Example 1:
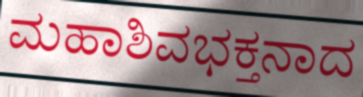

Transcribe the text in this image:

ಮಹಾಶಿವಭಕ್ತನಾದ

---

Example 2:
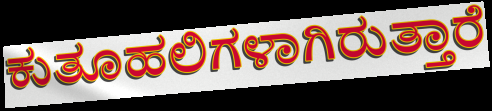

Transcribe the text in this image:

ಕುತೂಹಲಿಗಳಾಗಿರುತ್ತಾರೆ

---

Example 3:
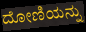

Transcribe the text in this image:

ದೋಣಿಯನ್ನು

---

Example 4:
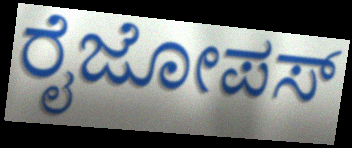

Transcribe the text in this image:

ರೈಜೋಪಸ್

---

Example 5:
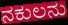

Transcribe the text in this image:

ನಕುಲನು